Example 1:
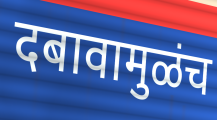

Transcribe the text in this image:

दबावामुळंच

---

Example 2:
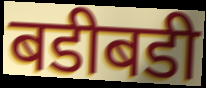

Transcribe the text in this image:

बडीबडी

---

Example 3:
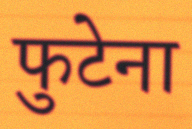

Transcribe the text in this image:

फुटेना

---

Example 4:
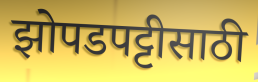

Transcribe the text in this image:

झोपडपट्टीसाठी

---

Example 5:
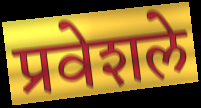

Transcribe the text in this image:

प्रवेशले